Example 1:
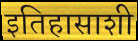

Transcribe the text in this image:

इतिहासाशी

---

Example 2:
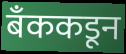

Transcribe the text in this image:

बँककडून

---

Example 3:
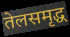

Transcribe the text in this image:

तेलसमृद्ध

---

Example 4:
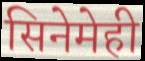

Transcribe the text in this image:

सिनेमेही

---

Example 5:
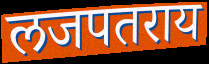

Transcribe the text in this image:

लजपतराय